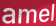
amel